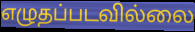
எழுதப்படவில்லை